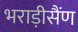
भराड़ीसैंण